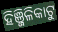
ହିଞ୍ଜିଳିକାଟୁ